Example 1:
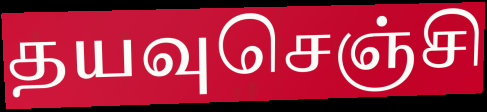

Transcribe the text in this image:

தயவுசெஞ்சி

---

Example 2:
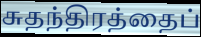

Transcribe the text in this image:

சுதந்திரத்தைப்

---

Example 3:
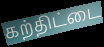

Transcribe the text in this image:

கற்திட்டை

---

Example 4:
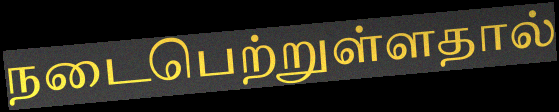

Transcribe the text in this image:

நடைபெற்றுள்ளதால்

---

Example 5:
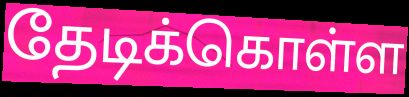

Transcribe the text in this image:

தேடிக்கொள்ள